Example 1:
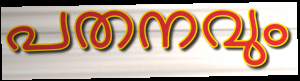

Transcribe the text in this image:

പതനവും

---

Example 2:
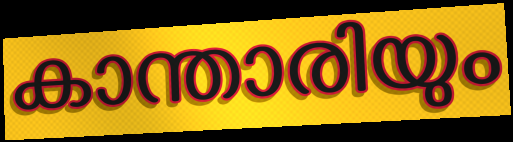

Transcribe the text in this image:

കാന്താരിയും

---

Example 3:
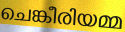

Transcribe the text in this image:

ചെങ്കീരിയമ്മ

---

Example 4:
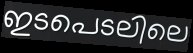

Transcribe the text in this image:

ഇടപെടലിലെ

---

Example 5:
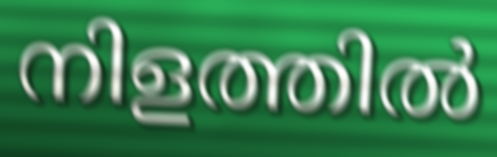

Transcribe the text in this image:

നിളത്തിൽ